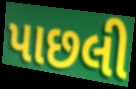
પાછલી